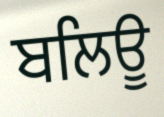
ਬਲਿਊ